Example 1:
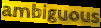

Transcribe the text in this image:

ambiguous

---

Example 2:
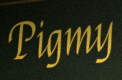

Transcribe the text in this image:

Pigmy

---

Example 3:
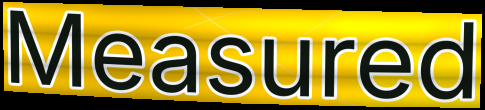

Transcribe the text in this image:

Measured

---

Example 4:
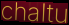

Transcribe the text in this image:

chaltu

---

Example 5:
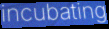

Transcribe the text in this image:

incubating